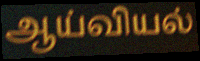
ஆய்வியல்